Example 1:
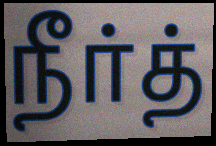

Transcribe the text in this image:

நீர்த்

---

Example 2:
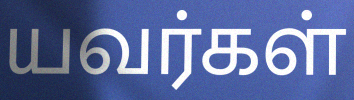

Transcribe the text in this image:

யவர்கள்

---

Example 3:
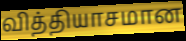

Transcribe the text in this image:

வித்தியாசமான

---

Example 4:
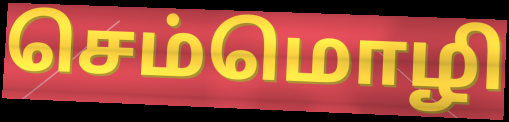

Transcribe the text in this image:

செம்மொழி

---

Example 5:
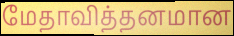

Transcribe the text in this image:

மேதாவித்தனமான